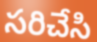
సరిచేసి